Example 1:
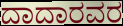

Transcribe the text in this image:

ದಾದಾರವರ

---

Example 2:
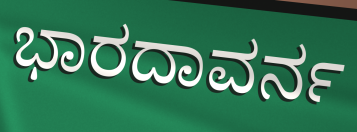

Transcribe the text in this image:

ಭಾರದಾವರ್ನ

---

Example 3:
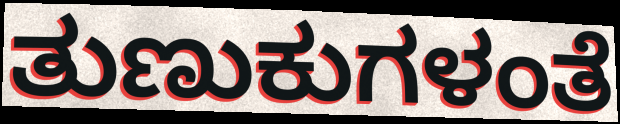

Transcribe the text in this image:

ತುಣುಕುಗಳಂತೆ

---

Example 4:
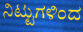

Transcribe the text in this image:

ನಿಟ್ಟುಗಳಿಂದ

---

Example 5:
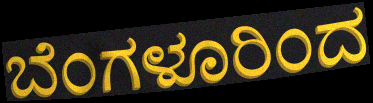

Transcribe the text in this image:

ಬೆಂಗಳೂರಿಂದ